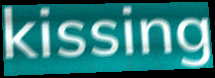
kissing